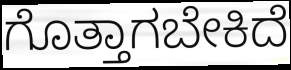
ಗೊತ್ತಾಗಬೇಕಿದೆ